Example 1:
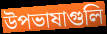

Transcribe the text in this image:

উপভাষাগুলি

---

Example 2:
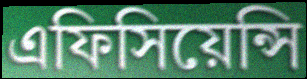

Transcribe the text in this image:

এফিসিয়েন্সি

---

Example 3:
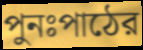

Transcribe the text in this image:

পুনঃপাঠের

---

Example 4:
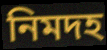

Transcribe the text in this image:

নিমদহ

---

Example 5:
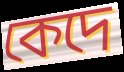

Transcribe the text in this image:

কেদে